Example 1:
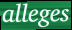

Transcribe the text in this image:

alleges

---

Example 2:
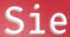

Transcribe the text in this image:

Sie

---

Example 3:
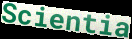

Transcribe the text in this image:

Scientia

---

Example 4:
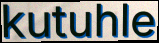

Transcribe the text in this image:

kutuhle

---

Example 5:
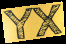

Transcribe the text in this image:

YX